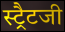
स्‍ट्रैटजी